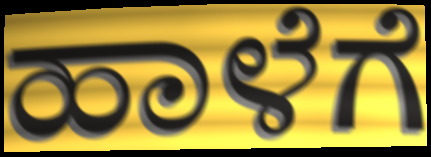
ಹಾಳೆಗೆ